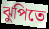
ঝুপিতে